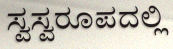
ಸ್ವಸ್ವರೂಪದಲ್ಲಿ